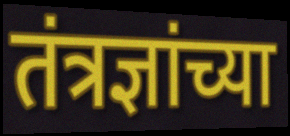
तंत्रज्ञांच्या